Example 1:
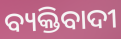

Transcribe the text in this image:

ବ୍ୟକ୍ତିବାଦୀ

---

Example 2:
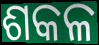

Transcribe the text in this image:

ଶକଳ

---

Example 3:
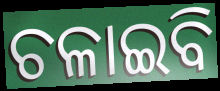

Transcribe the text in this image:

ଚଳାଇବି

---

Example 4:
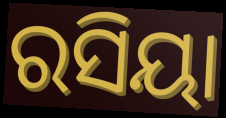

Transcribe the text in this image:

ରସିୟା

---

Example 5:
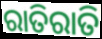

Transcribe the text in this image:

ରାତିରାତି